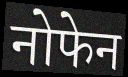
नोफेन